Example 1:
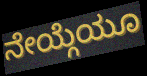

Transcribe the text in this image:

ನೇಯ್ಗೆಯೂ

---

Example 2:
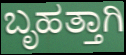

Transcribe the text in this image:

ಬೃಹತ್ತಾಗಿ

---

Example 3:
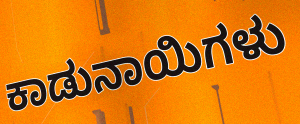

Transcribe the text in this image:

ಕಾಡುನಾಯಿಗಳು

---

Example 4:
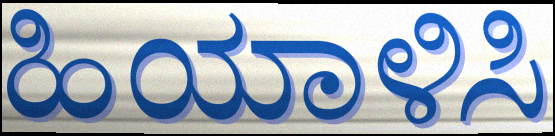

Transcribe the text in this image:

ಹಿಯಾಳಿಸಿ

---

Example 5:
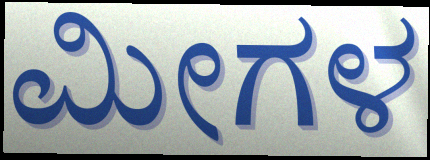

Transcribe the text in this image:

ಮೀಗಳ